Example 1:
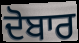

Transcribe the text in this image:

ਦੋਬਾਰ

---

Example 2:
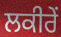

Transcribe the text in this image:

ਲਕੀਰੇਂ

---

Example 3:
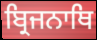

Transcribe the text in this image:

ਬ੍ਰਿਜਨਾਥਿ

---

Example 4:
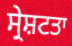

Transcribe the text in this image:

ਸ੍ਰੇਸ਼ਟਤਾ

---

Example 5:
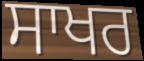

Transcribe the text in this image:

ਸਾਖਰ